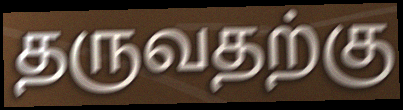
தருவதற்கு